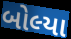
બોલ્યા